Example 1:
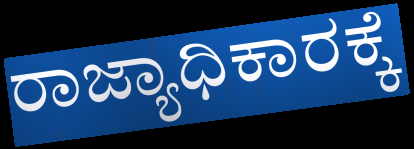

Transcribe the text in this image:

ರಾಜ್ಯಾಧಿಕಾರಕ್ಕೆ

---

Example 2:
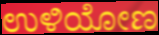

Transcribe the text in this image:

ಉಳಿಯೋಣ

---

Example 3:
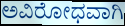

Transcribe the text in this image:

ಅವಿರೋಧವಾಗಿ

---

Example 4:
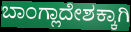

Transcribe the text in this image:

ಬಾಂಗ್ಲಾದೇಶಕ್ಕಾಗಿ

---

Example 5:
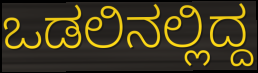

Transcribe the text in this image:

ಒಡಲಿನಲ್ಲಿದ್ದ